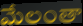
మేలంతా